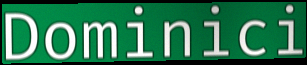
Dominici